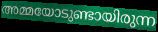
അമ്മയോടുണ്ടായിരുന്ന